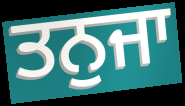
ਤਨੁਜਾ